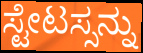
ಸ್ಟೇಟಸ್ಸನ್ನು